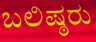
ಬಲಿಷ್ಠರು